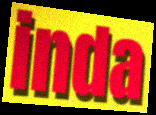
inda